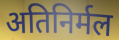
अतिनिर्मल